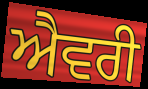
ਐਵਰੀ